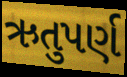
ઋતુપર્ણ